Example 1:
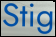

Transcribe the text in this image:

Stig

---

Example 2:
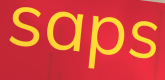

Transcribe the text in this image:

saps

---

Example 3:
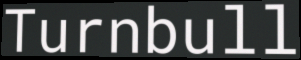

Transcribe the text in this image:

Turnbull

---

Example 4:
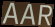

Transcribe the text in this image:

AAR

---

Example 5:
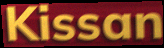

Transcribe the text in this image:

Kissan